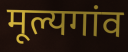
मूल्यगांव